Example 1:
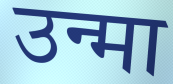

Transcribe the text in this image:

उन्मा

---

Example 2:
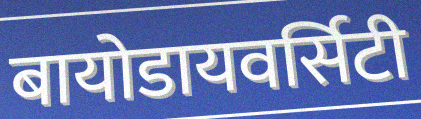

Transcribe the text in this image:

बायोडायवर्सिटी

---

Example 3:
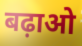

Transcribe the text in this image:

बढ़ाओ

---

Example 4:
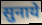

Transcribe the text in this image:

सुनाये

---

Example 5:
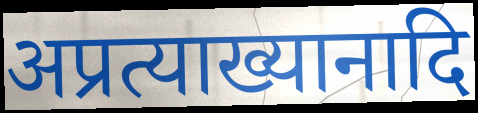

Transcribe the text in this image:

अप्रत्याख्यानादि